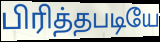
பிரித்தபடியே